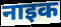
नाइक